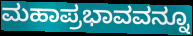
ಮಹಾಪ್ರಭಾವವನ್ನೂ